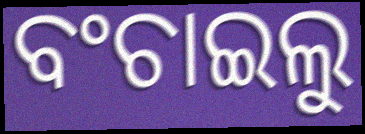
ବଂଚାଇଲୁ